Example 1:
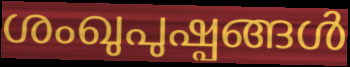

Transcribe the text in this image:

ശംഖുപുഷ്പങ്ങൾ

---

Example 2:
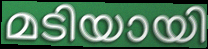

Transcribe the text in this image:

മടിയായി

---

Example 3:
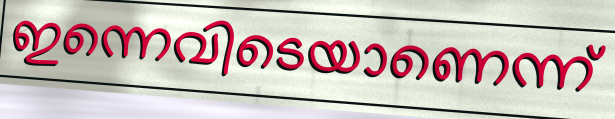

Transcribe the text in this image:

ഇന്നെവിടെയാണെന്ന്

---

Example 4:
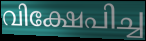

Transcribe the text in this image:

വിക്ഷേപിച്ച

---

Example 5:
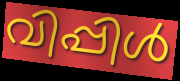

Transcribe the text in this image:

വിപ്പിൾ